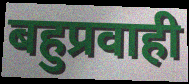
बहुप्रवाही